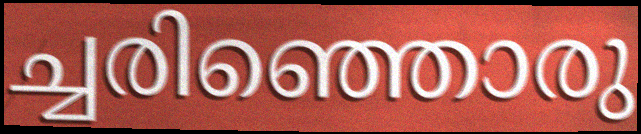
ച്ചരിഞ്ഞൊരു